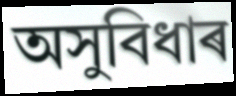
অসুবিধাৰ